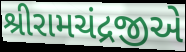
શ્રીરામચંદ્રજીએ